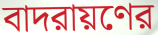
বাদরায়ণের